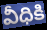
వీధికి